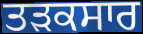
ਤੜਕਸਾਰ